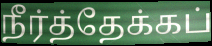
நீர்த்தேக்கப்